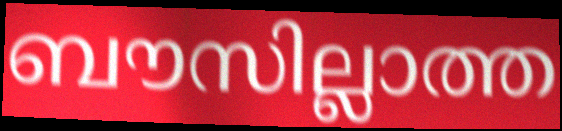
ബൗസില്ലാത്ത